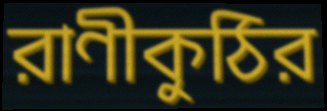
রাণীকুঠির